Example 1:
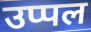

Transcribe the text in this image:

उप्पल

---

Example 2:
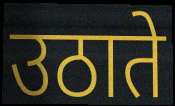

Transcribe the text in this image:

उठाते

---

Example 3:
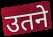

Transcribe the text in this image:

उतने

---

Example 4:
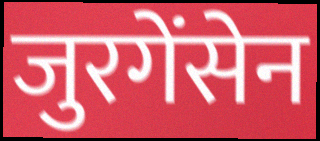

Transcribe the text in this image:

जुरगेंसेन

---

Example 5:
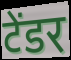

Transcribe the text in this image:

टेंडर